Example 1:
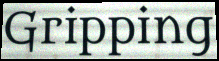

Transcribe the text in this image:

Gripping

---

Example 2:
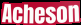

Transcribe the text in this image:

Acheson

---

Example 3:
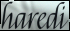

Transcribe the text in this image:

haredi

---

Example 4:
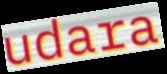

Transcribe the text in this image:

udara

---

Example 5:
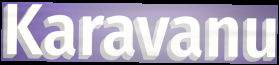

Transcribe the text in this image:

Karavanu